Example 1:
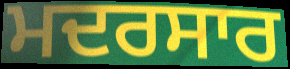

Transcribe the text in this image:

ਮਦਰਸਾਰ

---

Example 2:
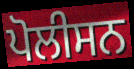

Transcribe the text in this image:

ਪੋਲੀਸਨ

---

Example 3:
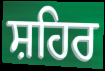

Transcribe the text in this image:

ਸ਼ਹਿਰ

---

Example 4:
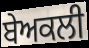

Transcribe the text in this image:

ਬੇਅਕਲੀ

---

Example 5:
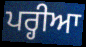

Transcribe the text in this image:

ਪਰ੍ਹੀਆ